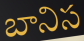
బానిస